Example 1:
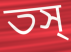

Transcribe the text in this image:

তস্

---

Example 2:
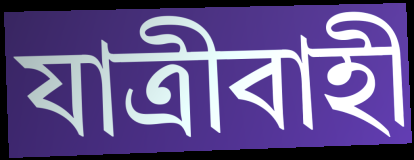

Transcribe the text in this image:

যাত্ৰীবাহী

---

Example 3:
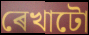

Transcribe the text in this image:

ৰেখাটো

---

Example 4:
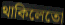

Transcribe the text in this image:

থাকিলেতো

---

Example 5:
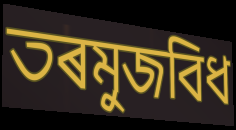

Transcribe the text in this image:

তৰমুজবিধ